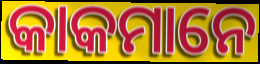
କାକମାନେ